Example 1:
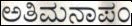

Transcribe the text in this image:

ಅತಿಮನಾಪಂ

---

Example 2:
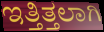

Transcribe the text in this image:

ಇತ್ತಿತ್ತಲಾಗಿ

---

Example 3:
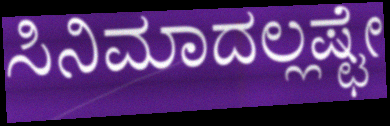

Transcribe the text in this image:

ಸಿನಿಮಾದಲ್ಲಷ್ಟೇ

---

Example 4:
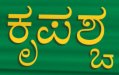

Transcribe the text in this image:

ಕೃಪಶ್ಚ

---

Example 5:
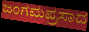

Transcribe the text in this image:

ಜಂಗಮಪ್ರಸಾದ